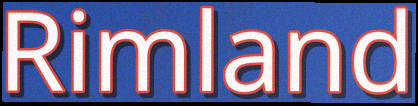
Rimland